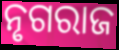
ନୃଗରାଜ